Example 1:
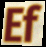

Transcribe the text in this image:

Ef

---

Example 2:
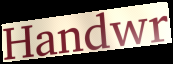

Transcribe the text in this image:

Handwr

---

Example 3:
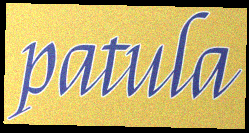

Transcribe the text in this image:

patula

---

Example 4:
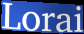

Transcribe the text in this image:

Lorai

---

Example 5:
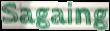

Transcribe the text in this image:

Sagaing